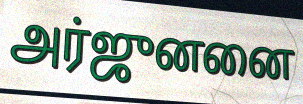
அர்ஜுனனை